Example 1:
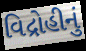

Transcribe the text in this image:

વિદ્રોહીનું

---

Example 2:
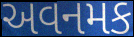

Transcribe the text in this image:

અવનમક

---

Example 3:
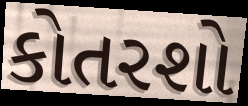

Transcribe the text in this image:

કોતરશો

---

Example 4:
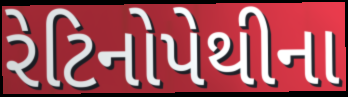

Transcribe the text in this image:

રેટિનોપેથીના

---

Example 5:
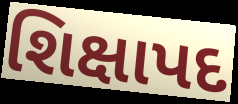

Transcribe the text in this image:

શિક્ષાપદ